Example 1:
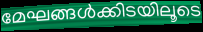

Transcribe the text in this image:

മേഘങ്ങൾക്കിടയിലൂടെ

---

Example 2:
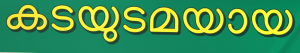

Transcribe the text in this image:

കടയുടമയായ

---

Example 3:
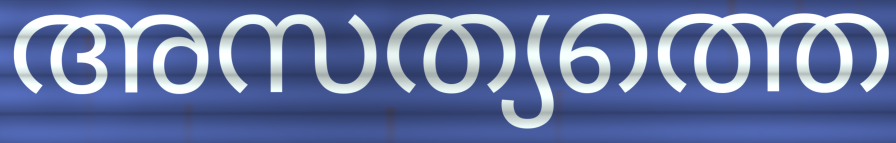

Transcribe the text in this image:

അസത്യത്തെ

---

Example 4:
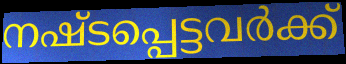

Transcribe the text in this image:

നഷ്ടപ്പെട്ടവർക്ക്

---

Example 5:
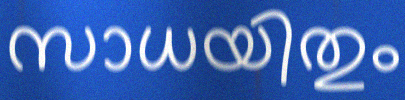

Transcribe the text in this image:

സാധയിതും